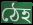
ঠেহ